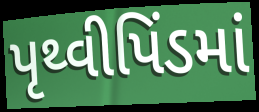
પૃથ્વીપિંડમાં